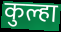
कुल्हा